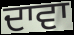
ਦਾਵਾ